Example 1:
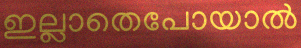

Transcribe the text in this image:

ഇല്ലാതെപോയാൽ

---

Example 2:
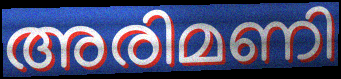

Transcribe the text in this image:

അരിമണി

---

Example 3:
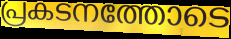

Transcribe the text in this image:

പ്രകടനത്തോടെ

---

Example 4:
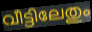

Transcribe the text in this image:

വീട്ടിലേതും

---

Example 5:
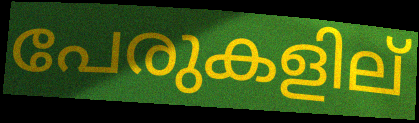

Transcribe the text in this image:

പേരുകളില്